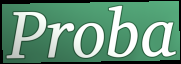
Proba